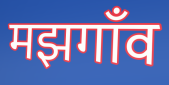
मझगाँव